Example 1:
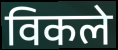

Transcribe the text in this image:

विकले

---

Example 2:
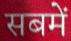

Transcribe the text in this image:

सबमें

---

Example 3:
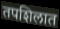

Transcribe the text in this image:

तपशिलात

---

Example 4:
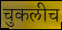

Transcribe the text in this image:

चुकलीच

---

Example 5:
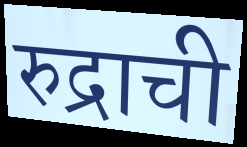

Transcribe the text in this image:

रुद्राची